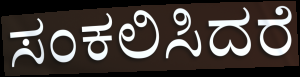
ಸಂಕಲಿಸಿದರೆ